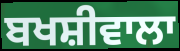
ਬਖਸ਼ੀਵਾਲਾ